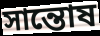
সান্তোষ